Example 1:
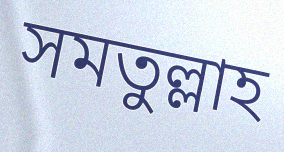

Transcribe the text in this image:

সমতুল্লাহ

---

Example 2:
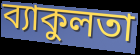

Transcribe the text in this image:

ব্যাকুলতা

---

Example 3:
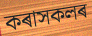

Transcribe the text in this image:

কৰাসকলৰ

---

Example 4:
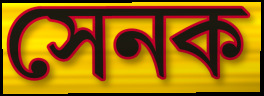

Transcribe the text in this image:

সেনক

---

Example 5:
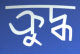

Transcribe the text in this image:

ক্ৰুদ্ধ